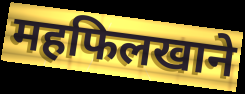
महफिलखाने